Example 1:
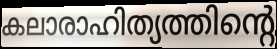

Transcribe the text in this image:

കലാരാഹിത്യത്തിന്റെ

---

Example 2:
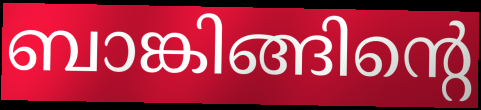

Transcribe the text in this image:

ബാങ്കിങ്ങിന്റെ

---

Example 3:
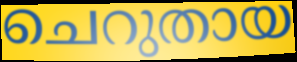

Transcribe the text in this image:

ചെറുതായ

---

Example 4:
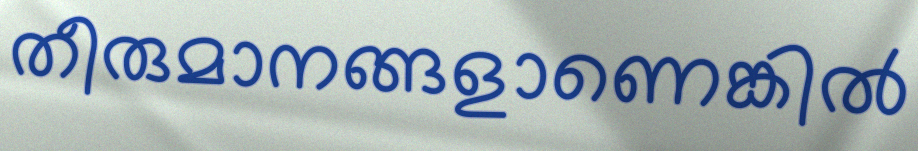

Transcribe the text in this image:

തീരുമാനങ്ങളാണെങ്കിൽ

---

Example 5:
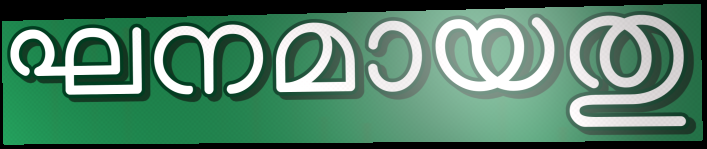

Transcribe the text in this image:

ഘനമായതു